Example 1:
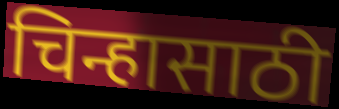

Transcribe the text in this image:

चिन्हासाठी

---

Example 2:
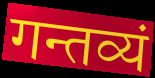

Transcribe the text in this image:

गन्तव्यं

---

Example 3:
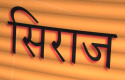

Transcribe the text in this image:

सिराज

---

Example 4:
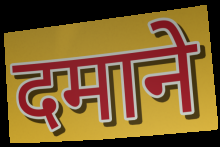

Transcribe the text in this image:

दमाने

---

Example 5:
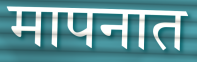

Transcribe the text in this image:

मापनात